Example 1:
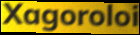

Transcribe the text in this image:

Xagoroloi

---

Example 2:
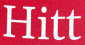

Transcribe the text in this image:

Hitt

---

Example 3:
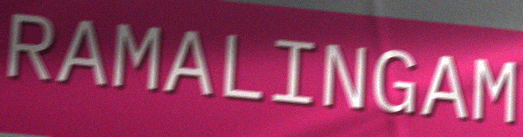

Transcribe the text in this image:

RAMALINGAM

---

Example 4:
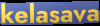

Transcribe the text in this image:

kelasava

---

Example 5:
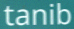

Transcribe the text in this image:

tanib